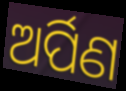
ଅର୍ପିଣ